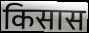
किसास